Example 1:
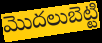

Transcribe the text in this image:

మొదలుబెట్టి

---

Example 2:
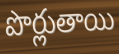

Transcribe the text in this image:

పొర్లుతాయి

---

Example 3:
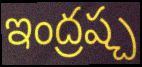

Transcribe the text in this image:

ఇంద్రష్చ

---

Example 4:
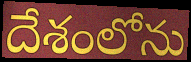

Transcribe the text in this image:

దేశంలోను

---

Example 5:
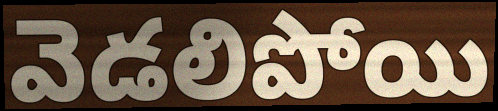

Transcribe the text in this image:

వెడలిపోయి